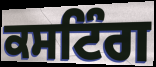
ਕਸਟਿੰਗ